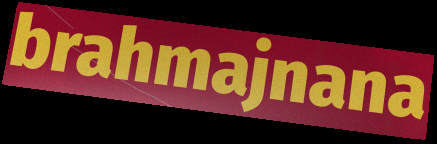
brahmajnana